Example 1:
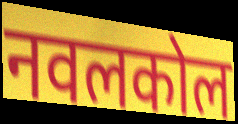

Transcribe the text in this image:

नवलकोल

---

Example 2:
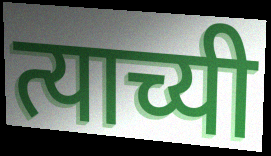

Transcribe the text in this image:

त्याच्यी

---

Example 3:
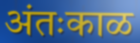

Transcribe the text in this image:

अंतःकाळ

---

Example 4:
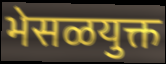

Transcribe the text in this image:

भेसळयुक्त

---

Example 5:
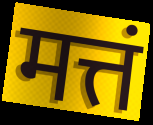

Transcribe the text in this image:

मत्तं